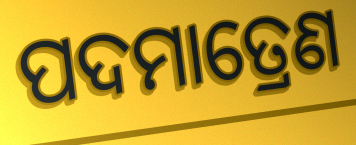
ପଦମାତ୍ରେଣ